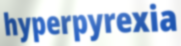
hyperpyrexia